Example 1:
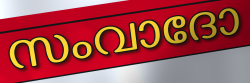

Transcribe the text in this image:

സംവാദോ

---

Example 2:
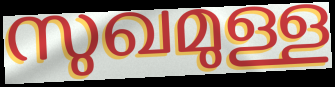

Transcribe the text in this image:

സുഖമുള്ള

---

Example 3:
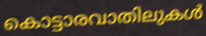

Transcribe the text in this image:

കൊട്ടാരവാതിലുകൾ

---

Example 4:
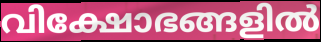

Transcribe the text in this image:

വിക്ഷോഭങ്ങളിൽ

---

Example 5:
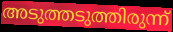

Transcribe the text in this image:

അടുത്തടുത്തിരുന്ന്